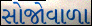
સોજોવાળા